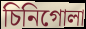
চিনিগোলা